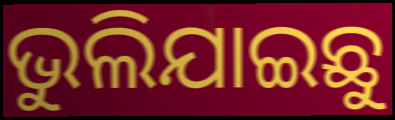
ଭୁଲିଯାଇଛୁ